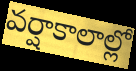
వర్షాకాలాల్లో